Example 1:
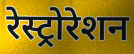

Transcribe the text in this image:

रेस्ट्रोरेशन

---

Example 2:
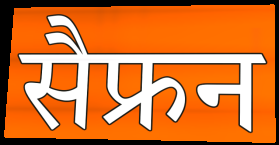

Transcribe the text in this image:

सैफ्रन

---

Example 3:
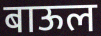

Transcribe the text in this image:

बाऊल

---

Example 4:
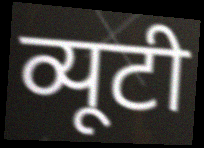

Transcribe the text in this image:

व्यूटी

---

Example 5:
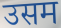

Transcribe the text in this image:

उसम